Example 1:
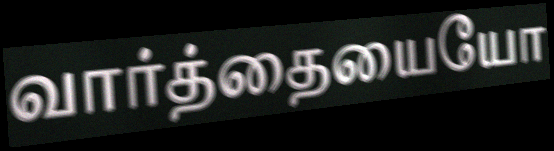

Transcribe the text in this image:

வார்த்தையையோ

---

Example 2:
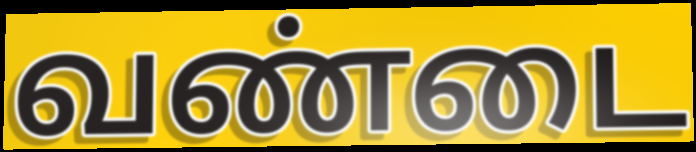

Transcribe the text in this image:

வண்டை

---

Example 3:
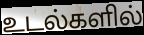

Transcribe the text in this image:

உடல்களில்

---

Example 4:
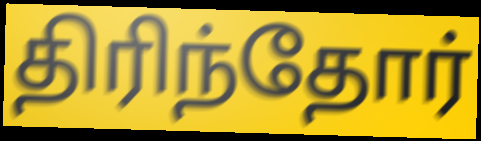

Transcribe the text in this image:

திரிந்தோர்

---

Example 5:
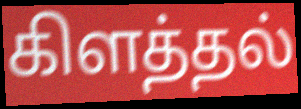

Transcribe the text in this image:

கிளத்தல்